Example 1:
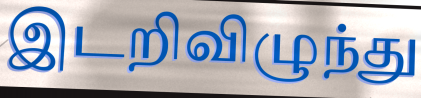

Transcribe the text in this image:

இடறிவிழுந்து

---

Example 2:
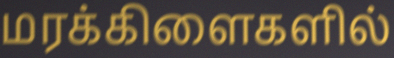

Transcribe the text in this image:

மரக்கிளைகளில்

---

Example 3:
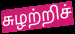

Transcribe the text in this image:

சுழற்றிச்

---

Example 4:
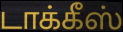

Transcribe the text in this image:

டாக்கீஸ்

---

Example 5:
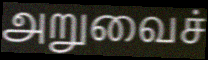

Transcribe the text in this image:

அறுவைச்